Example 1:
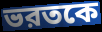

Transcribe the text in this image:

ভরতকে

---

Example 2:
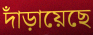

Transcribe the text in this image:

দাঁড়ায়েছে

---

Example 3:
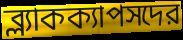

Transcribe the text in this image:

ব্ল্যাকক্যাপসদের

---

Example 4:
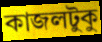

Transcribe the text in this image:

কাজলটুকু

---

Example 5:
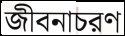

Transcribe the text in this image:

জীবনাচরণ